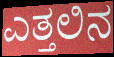
ಎತ್ತಲಿನ